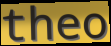
theo